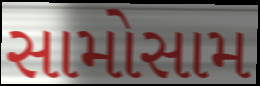
સામોસામ